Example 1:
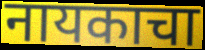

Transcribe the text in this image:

नायकाचा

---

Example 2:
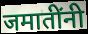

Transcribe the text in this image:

जमातींनी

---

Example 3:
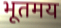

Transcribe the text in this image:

भूतमय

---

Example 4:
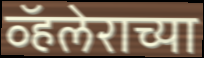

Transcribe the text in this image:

व्हॅलेराच्या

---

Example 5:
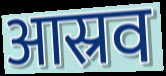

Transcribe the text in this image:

आस्रव